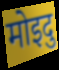
मोइदु